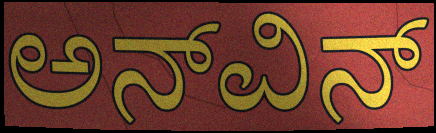
ಅನ್‌ವಿನ್